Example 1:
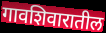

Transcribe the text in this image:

गावशिवारातील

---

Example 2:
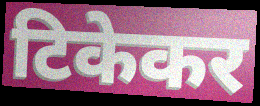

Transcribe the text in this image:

टिकेकर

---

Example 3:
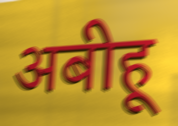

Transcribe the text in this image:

अबीहू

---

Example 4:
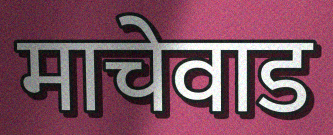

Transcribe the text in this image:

माचेवाड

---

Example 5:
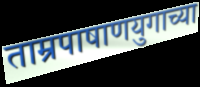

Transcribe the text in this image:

ताम्रपाषाणयुगाच्या